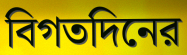
বিগতদিনের